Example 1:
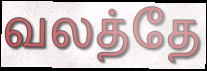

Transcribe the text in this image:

வலத்தே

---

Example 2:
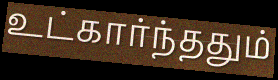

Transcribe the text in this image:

உட்கார்ந்ததும்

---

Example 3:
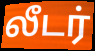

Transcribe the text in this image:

லீடர்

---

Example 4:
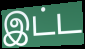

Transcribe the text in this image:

இட்ட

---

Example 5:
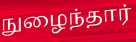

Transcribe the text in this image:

நுழைந்தார்